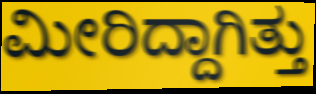
ಮೀರಿದ್ದಾಗಿತ್ತು